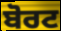
ਬੋਰਟ